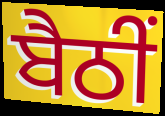
ਬੈਠੀਂ